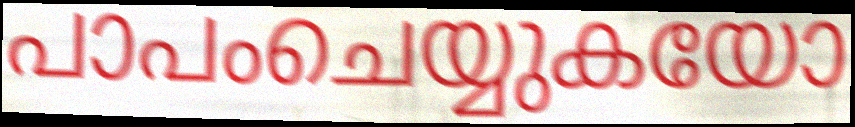
പാപംചെയ്യുകയോ